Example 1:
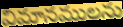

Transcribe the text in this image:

విమానములను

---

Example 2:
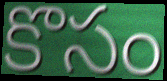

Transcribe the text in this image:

కొసం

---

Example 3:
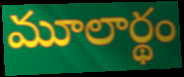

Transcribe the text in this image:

మూలార్థం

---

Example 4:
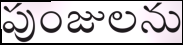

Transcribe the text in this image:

పుంజులను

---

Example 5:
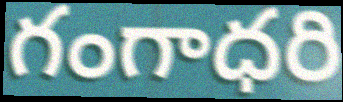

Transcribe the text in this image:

గంగాధరి